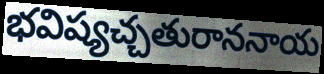
భవిష్యచ్చతురాననాయ